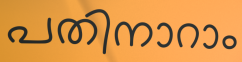
പതിനാറാം